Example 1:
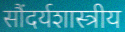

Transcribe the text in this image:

सौंदर्यशास्त्रीय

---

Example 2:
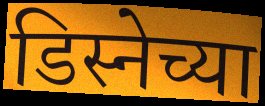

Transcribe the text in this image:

डिस्नेच्या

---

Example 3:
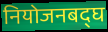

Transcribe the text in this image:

नियोजनबद्घ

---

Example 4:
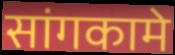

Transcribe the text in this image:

सांगकामे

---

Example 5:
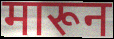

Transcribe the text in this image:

मारून